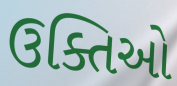
ઉક્તિઓ